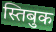
स्तिबुक